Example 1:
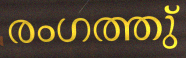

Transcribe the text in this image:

രംഗത്തു്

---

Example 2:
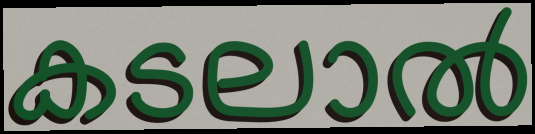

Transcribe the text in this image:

കടലാൽ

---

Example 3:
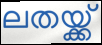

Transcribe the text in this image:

ലതയ്ക്ക്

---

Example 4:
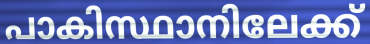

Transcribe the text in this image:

പാകിസ്ഥാനിലേക്ക്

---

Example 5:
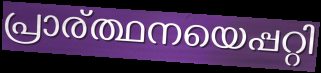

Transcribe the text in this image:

പ്രാര്ത്ഥനയെപ്പറ്റി